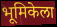
भूमिकेला